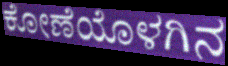
ಕೋಣೆಯೊಳಗಿನ